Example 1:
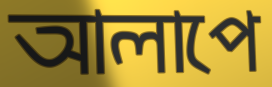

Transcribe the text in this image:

আলাপে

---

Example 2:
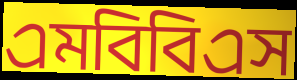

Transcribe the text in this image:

এমবিবিএস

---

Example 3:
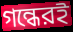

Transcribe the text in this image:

গন্ধেরই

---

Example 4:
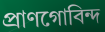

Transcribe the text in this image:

প্রাণগোবিন্দ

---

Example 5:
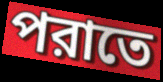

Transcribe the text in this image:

পরাতে